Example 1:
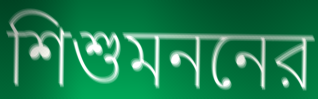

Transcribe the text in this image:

শিশুমননের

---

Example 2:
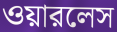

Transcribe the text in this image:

ওয়ারলেস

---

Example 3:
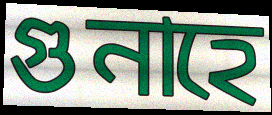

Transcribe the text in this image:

গুনাহে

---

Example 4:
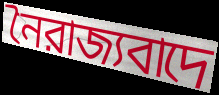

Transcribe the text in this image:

নৈরাজ্যবাদে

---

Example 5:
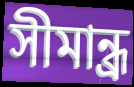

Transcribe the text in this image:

সীমান্ধ্র